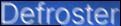
Defroster